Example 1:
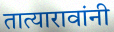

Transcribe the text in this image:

तात्यारावांनी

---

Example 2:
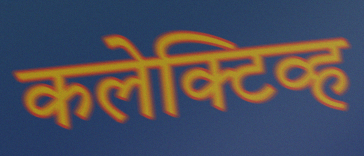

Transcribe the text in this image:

कलेक्टिव्ह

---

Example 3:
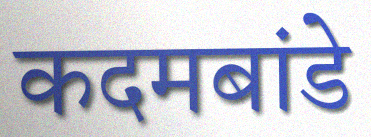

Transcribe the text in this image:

कदमबांडे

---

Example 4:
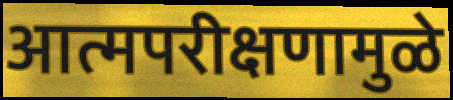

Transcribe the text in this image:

आत्मपरीक्षणामुळे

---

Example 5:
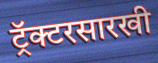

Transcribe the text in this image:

ट्रॅक्टरसारखी